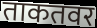
ताकतवर